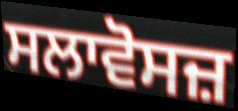
ਸਲਾਵੋਸਜ਼